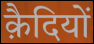
क़ैदियों